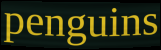
penguins